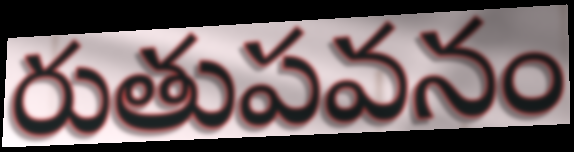
రుతుపవనం